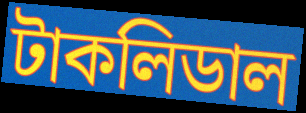
টাকলিডাল